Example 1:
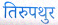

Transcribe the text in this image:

तिरुपथुर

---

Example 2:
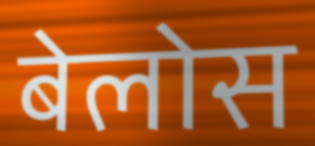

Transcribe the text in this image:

बेलोस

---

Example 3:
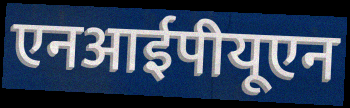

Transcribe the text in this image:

एनआईपीयूएन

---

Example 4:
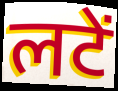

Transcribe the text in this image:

लटें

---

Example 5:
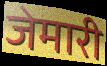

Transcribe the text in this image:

जेमारी